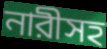
নারীসহ